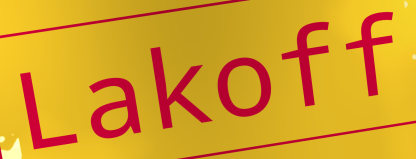
Lakoff